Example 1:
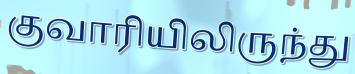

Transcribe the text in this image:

குவாரியிலிருந்து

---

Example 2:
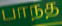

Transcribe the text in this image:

பாநத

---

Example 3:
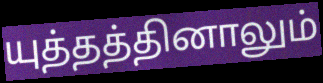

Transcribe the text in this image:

யுத்தத்தினாலும்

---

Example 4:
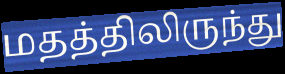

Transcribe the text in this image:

மதத்திலிருந்து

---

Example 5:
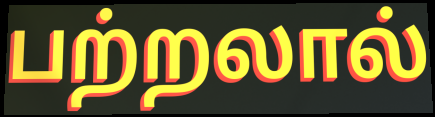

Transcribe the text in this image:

பற்றலால்